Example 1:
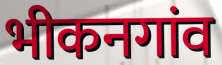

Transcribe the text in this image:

भीकनगांव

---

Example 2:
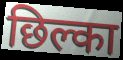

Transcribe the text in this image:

छिल्का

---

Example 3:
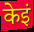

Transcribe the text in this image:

केइं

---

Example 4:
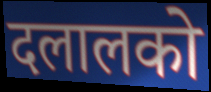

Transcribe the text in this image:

दलालको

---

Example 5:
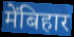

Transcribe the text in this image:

मेंबिहार